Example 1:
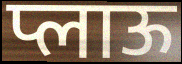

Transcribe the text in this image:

प्लाऊ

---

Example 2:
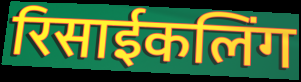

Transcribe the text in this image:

रिसाईकलिंग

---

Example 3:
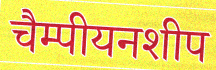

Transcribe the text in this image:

चैम्पीयनशीप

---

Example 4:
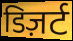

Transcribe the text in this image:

डिज़र्ट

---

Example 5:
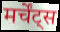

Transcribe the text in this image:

मर्चेंट्स